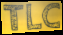
TLC